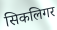
सिकलिगर